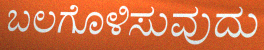
ಬಲಗೊಳಿಸುವುದು